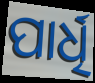
ପାର୍ଧି